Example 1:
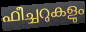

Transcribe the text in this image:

ഫീച്ചറുകളും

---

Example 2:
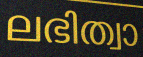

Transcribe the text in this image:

ലഭിത്വാ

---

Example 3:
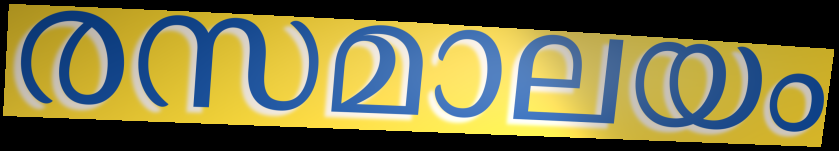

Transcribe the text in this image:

രസമാലയം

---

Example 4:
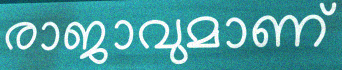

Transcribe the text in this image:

രാജാവുമാണ്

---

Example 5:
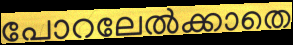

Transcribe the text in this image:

പോറലേൽക്കാതെ